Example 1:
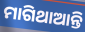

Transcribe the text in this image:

ମାଗିଥାଆନ୍ତି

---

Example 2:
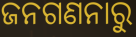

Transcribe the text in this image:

ଜନଗଣନାରୁ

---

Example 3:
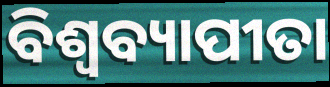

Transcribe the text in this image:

ବିଶ୍ୱବ୍ୟାପୀତା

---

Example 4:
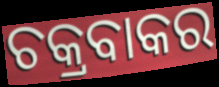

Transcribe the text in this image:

ଚକ୍ରବାକର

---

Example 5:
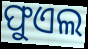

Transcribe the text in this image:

ଫୁଏଲ